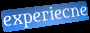
experiecne